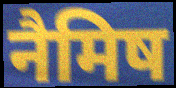
नैमिष